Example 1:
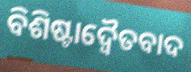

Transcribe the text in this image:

ବିଶିଷ୍ଟାଦ୍ୱୈତବାଦ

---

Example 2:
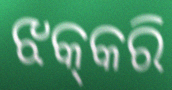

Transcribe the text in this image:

ଝକ୍‌କରି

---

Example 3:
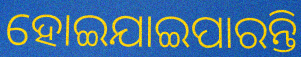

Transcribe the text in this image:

ହୋଇଯାଇପାରନ୍ତି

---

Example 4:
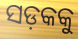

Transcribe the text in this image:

ସଡ଼କକୁ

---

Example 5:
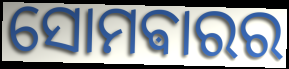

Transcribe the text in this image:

ସୋମଵାରର